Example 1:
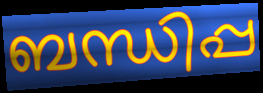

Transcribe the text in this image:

ബന്ധിപ്പ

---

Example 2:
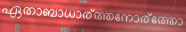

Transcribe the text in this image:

ഏതാബാധാര്ത്തനോര്ത്തോ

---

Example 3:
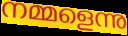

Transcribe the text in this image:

നമ്മളെന്നു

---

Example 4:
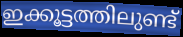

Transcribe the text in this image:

ഇക്കൂട്ടത്തിലുണ്ട്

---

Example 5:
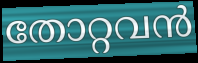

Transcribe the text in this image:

തോറ്റവൻ